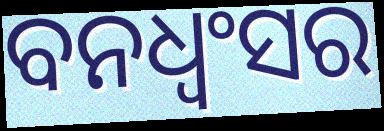
ବନଧ୍ଵଂସର